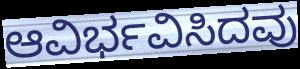
ಆವಿರ್ಭವಿಸಿದವು